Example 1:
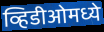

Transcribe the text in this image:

व्हिडीओमध्ये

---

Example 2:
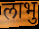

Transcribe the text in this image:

लाभु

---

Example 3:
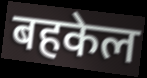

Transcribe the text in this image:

बहकेल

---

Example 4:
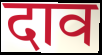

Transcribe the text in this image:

दाव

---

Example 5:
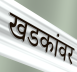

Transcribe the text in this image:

खडकांवर